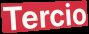
Tercio